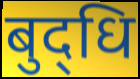
बुद्धि